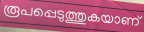
രൂപപ്പെടുത്തുകയാണ്